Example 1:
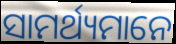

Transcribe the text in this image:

ସାମର୍ଥ୍ୟମାନେ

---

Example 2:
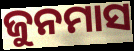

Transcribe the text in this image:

ଜୁନମାସ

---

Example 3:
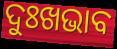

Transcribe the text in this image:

ଦୁଃଖଭାବ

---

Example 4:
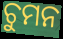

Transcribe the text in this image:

ଚୁମନ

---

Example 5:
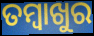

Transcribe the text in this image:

ତମ୍ବାଖୁର